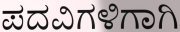
ಪದವಿಗಳಿಗಾಗಿ